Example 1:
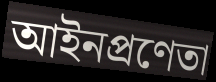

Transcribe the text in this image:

আইনপ্রণেতা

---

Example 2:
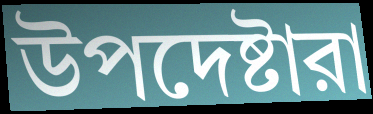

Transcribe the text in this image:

উপদেষ্টারা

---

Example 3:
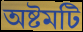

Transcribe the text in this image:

অষ্টমটি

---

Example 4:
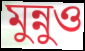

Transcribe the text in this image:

মুন্নুও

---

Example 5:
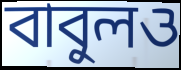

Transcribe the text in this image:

বাবুলও